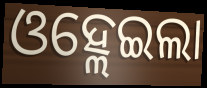
ଓହ୍ଲେଇଲା